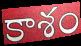
కాశం